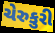
ચેરુકુરી